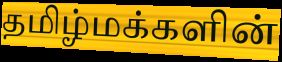
தமிழ்மக்களின்